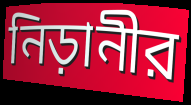
নিড়ানীর